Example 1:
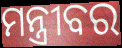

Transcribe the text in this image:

ମନ୍ତ୍ରୀବର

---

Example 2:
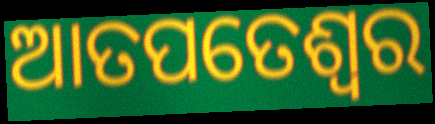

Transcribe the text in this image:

ଆତପତେଶ୍ୱର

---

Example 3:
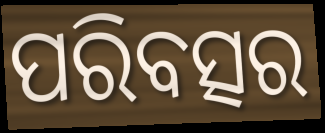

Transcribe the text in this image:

ପରିବତ୍ସର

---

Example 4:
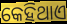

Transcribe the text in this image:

କେହିଥାଏ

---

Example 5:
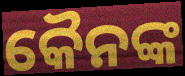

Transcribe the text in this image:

କୈନଙ୍କ